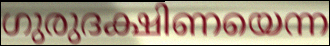
ഗുരുദക്ഷിണയെന്ന